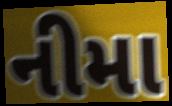
નીમા